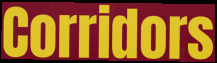
Corridors